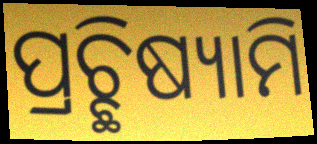
ପ୍ରଚ୍ଛିଷ୍ୟାମି